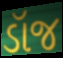
ડૉજ